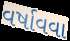
વર્ષાવવા